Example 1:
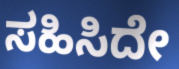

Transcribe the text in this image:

ಸಹಿಸಿದೇ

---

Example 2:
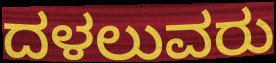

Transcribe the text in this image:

ದಳಲುವರು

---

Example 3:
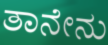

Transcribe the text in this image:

ತಾನೇನು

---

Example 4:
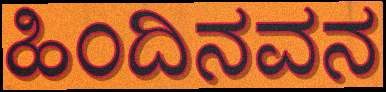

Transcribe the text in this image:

ಹಿಂದಿನವನ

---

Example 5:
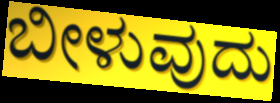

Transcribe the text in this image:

ಬೀಳುವುದು